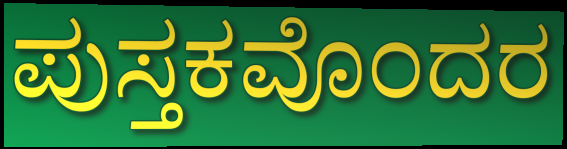
ಪುಸ್ತಕವೊಂದರ